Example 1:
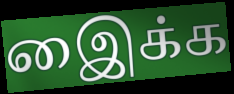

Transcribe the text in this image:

இைக்க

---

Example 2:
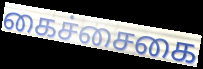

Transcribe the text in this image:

கைச்சைகை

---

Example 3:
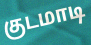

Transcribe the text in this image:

குடமாடி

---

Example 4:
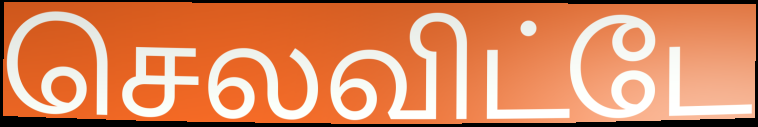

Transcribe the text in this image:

செலவிட்டே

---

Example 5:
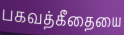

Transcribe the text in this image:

பகவத்கீதையை